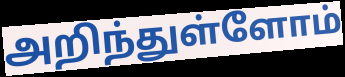
அறிந்துள்ளோம்